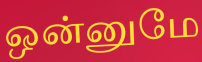
ஒன்னுமே